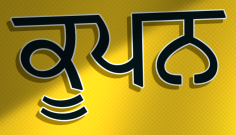
ਕੂਪਨ